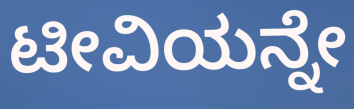
ಟೀವಿಯನ್ನೇ